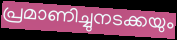
പ്രമാണിച്ചുനടക്കയും